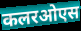
कलरओएस